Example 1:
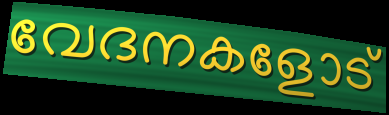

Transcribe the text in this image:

വേദനകളോട്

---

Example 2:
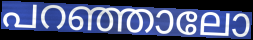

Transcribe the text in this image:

പറഞ്ഞാലോ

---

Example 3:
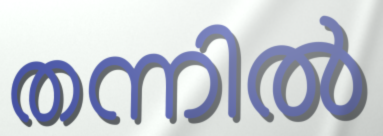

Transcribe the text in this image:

തന്നിൽ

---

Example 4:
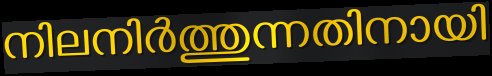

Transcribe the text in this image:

നിലനിർത്തുന്നതിനായി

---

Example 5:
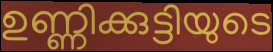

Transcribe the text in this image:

ഉണ്ണിക്കുട്ടിയുടെ